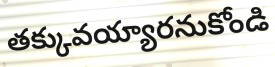
తక్కువయ్యారనుకోండి